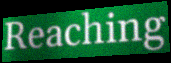
Reaching